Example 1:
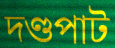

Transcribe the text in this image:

দণ্ডপাট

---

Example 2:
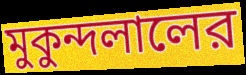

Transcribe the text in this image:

মুকুন্দলালের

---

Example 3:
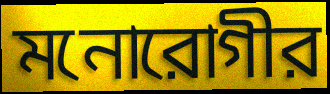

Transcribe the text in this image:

মনোরোগীর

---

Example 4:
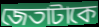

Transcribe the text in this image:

জেতাটাকে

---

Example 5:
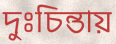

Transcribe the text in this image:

দুঃচিন্তায়